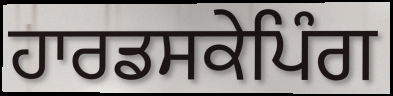
ਹਾਰਡਸਕੇਪਿੰਗ